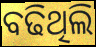
ବଢିଥିଲି